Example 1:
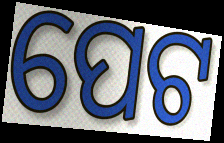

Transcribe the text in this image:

ପେଟ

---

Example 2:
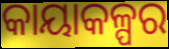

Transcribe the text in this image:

କାୟାକଳ୍ପର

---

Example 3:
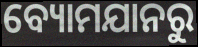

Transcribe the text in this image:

ବ୍ୟୋମଯାନରୁ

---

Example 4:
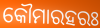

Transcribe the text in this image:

କୌମାରହରଃ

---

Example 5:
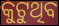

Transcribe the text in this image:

କୁଟୁଥିବ